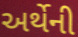
અર્થેની